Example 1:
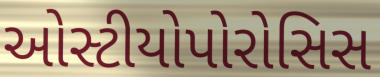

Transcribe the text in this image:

ઓસ્ટીયોપોરોસિસ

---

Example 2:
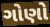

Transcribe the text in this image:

ગોણો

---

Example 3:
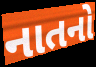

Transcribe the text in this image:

નાતનો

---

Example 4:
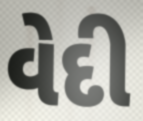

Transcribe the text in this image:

વેદી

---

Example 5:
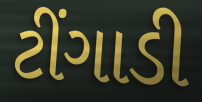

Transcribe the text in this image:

ટીંગાડી